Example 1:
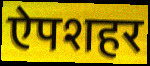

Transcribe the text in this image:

ऐपशहर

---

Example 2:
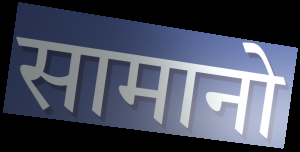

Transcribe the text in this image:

सामानो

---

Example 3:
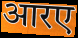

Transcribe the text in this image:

आरए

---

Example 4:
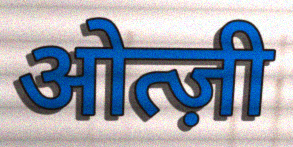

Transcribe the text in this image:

ओत्ज़ी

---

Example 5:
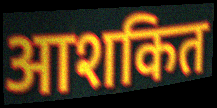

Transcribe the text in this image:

आशकित